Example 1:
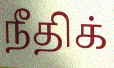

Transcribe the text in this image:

நீதிக்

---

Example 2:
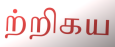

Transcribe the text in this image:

ற்றிகய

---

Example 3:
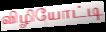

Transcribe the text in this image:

விழியோட்டி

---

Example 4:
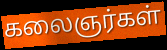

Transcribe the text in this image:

கலைஞர்கள்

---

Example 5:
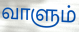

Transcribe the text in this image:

வாளும்